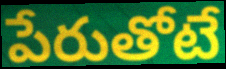
పేరుతోటే